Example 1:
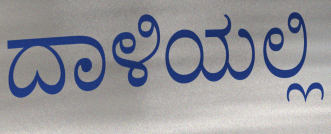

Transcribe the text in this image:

ದಾಳಿಯಲ್ಲಿ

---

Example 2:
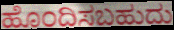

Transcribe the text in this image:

ಹೊಂದಿಸಬಹುದು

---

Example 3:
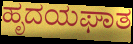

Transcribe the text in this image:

ಹೃದಯಘಾತ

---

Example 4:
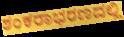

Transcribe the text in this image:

ಶಂಕರಾಭರಣದಲ್ಲಿ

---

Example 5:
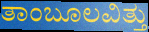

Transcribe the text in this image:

ತಾಂಬೂಲವಿತ್ತು